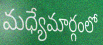
మధ్యేమార్గంలో